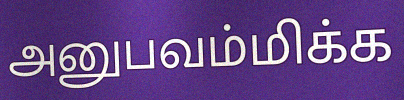
அனுபவம்மிக்க